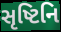
સૃષ્ટિનિ